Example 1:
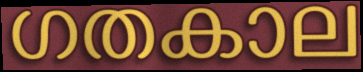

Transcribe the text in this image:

ഗതകാല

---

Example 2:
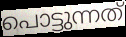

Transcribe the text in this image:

പൊട്ടുന്നത്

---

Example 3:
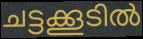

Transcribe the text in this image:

ചട്ടക്കൂടിൽ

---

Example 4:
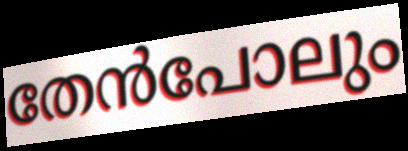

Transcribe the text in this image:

തേൻപോലും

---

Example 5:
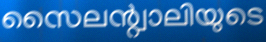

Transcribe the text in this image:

സൈലന്റ്വാലിയുടെ